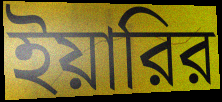
ইয়ারির